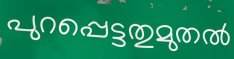
പുറപ്പെട്ടതുമുതൽ